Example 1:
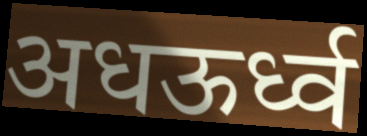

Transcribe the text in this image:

अधऊर्ध्व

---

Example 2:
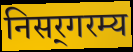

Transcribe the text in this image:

निसर्गरम्य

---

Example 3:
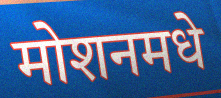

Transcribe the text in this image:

मोशनमधे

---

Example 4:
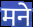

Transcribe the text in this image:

मने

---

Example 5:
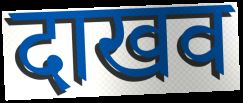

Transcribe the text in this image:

दाखव